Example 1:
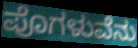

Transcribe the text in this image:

ಪೊಗಳುವೆನು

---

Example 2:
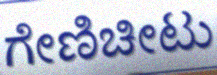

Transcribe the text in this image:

ಗೇಣಿಚೀಟು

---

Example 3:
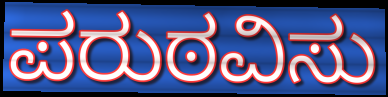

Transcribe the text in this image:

ಪರುಠವಿಸು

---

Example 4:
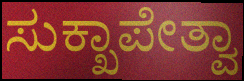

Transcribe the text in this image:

ಸುಕ್ಖಾಪೇತ್ವಾ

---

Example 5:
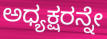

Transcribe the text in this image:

ಅಧ್ಯಕ್ಷರನ್ನೇ